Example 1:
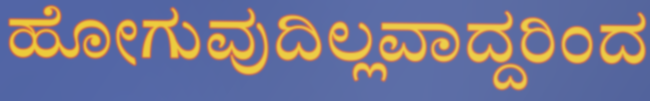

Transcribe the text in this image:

ಹೋಗುವುದಿಲ್ಲವಾದ್ದರಿಂದ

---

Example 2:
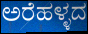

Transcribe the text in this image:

ಅರೆಹಳ್ಳದ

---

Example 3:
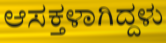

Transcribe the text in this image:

ಆಸಕ್ತಳಾಗಿದ್ದಳು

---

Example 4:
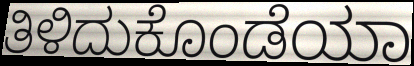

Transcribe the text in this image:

ತಿಳಿದುಕೊಂಡೆಯಾ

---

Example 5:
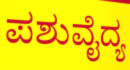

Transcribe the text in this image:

ಪಶುವೈದ್ಯ